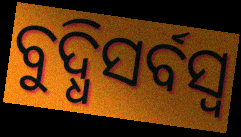
ବୁଦ୍ଧିସର୍ବସ୍ୱ